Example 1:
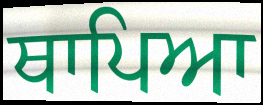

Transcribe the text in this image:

ਥਾਪਿਆ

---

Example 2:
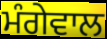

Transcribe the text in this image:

ਮੰਗੇਵਾਲ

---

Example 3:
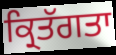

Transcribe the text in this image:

ਕ੍ਰਿਤੱਗਤਾ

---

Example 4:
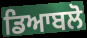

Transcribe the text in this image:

ਡਿਆਬਲੋ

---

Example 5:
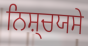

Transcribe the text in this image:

ਨਿਸ਼੍ਚਯਸੇ